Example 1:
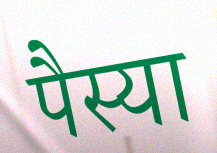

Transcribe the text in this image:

पैस्या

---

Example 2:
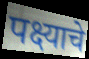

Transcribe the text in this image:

पक्ष्याचे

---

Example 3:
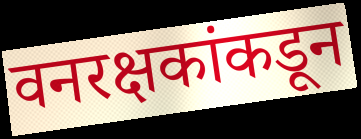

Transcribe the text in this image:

वनरक्षकांकडून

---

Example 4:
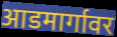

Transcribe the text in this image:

आडमार्गावर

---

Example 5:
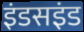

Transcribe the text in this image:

इंडसइंड